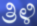
ತಿಳಿ